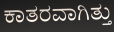
ಕಾತರವಾಗಿತ್ತು